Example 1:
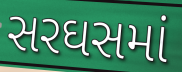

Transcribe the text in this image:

સરઘસમાં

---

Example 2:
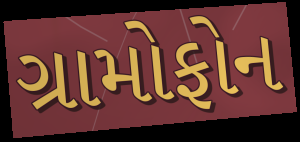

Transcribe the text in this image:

ગ્રામોફોન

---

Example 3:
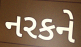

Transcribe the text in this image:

નરકને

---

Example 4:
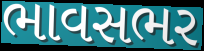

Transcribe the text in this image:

ભાવસભર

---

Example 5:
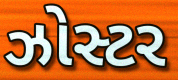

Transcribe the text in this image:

ઝોસ્ટર